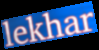
lekhar